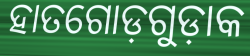
ହାତଗୋଡ଼ଗୁଡ଼ାକ